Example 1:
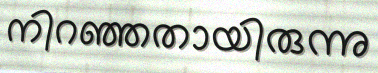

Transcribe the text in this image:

നിറഞ്ഞതായിരുന്നു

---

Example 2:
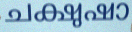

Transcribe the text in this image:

ചക്ഷുഷാ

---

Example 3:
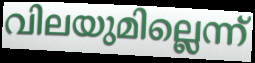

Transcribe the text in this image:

വിലയുമില്ലെന്ന്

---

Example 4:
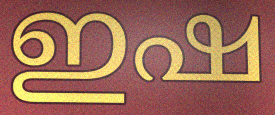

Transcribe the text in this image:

ഇഷ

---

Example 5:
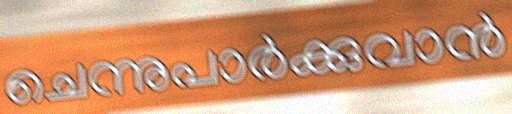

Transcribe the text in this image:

ചെന്നുപാർക്കുവാൻ